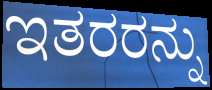
ಇತರರನ್ನು